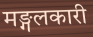
मङ्गलकारी